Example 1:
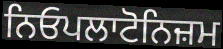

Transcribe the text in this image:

ਨਿਓਪਲਾਟੋਨਿਜ਼ਮ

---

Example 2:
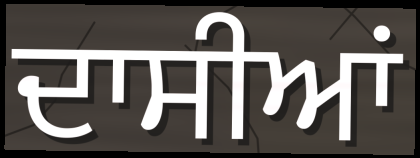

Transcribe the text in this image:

ਦਾਸੀਆਂ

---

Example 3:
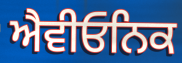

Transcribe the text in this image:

ਐਵੀਓਨਿਕ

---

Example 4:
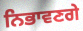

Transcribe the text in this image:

ਨਿਭਾਵਣਗੇ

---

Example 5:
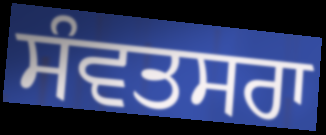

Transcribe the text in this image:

ਸੰਵਤਸਰਾ